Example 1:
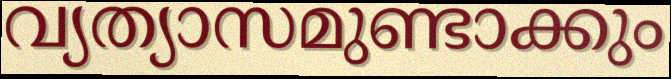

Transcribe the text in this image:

വ്യത്യാസമുണ്ടാക്കും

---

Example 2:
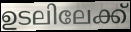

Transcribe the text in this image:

ഉടലിലേക്ക്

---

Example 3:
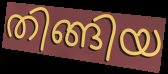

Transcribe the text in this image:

തിങ്ങിയ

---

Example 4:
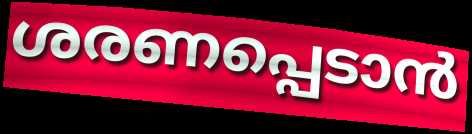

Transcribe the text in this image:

ശരണപ്പെടാൻ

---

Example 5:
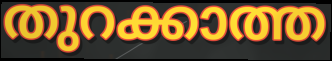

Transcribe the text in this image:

തുറക്കാത്ത